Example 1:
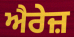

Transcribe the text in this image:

ਐਰੇਜ਼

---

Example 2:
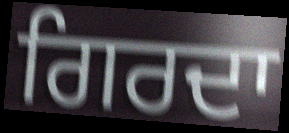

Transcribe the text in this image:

ਗਿਰਦਾ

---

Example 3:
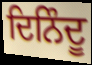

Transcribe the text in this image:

ਦਿਨਿੰਦੂ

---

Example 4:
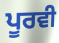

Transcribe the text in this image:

ਪੂਰਵੀ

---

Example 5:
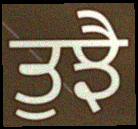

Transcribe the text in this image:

ਤੁਝੈ